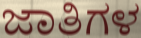
ಜಾತಿಗಳ